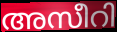
അസീറി